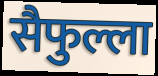
सैफुल्ला